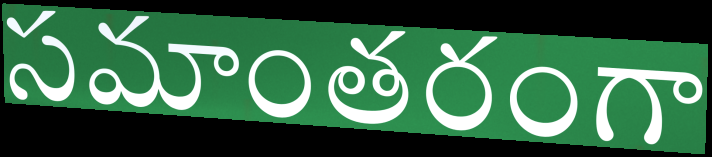
సమాంతరంగా